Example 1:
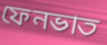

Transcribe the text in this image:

ফেনভাত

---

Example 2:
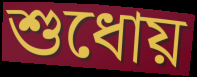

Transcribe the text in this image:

শুধোয়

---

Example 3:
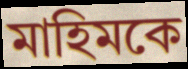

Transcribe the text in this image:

মাহিমকে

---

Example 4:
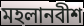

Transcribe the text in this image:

মহলানবীশ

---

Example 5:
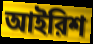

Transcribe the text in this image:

আইরিশ